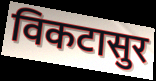
विकटासुर